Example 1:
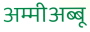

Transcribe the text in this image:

अम्मीअब्बू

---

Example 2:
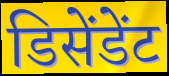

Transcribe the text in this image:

डिसेंडेंट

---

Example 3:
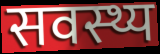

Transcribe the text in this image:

सवस्थ्य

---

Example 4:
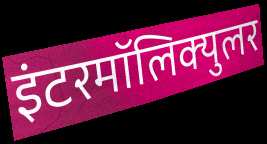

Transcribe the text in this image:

इंटरमॉलिक्युलर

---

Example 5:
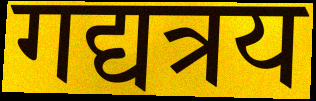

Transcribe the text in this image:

गद्यत्रय